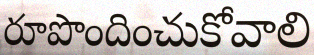
రూపొందించుకోవాలి